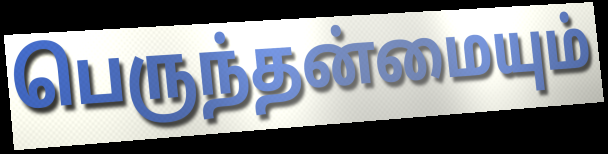
பெருந்தன்மையும்